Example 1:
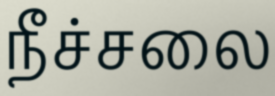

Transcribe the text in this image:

நீச்சலை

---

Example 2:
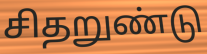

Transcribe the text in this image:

சிதறுண்டு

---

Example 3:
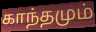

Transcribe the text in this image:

காந்தமும்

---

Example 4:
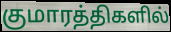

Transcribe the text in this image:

குமாரத்திகளில்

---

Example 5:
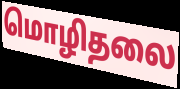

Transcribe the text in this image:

மொழிதலை